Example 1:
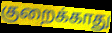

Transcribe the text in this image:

குறைக்காது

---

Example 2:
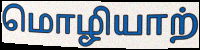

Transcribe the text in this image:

மொழியாற்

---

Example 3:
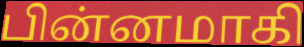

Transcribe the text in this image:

பின்னமாகி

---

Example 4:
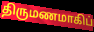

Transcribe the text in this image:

திருமணமாகிப்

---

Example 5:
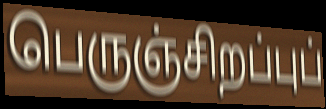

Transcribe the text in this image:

பெருஞ்சிறப்புப்